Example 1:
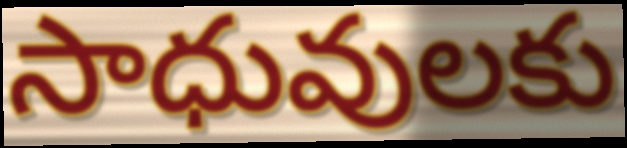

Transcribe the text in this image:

సాధువులకు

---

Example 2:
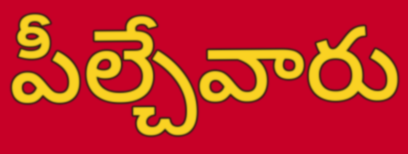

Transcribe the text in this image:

పీల్చేవారు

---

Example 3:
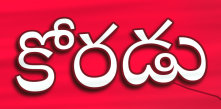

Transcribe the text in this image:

కోరడు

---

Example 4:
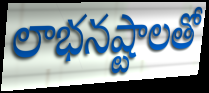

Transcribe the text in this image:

లాభనష్టాలతో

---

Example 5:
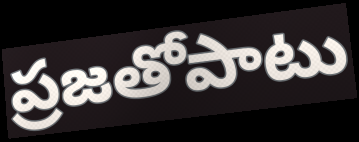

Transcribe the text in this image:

ప్రజతోపాటు